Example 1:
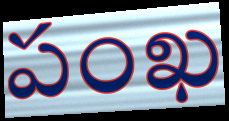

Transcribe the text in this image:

పంఖ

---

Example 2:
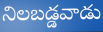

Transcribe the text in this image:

నిలబడ్డవాడు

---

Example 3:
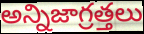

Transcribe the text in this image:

అన్నిజాగ్రత్తలు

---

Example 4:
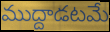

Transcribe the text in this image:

ముద్దాడటమే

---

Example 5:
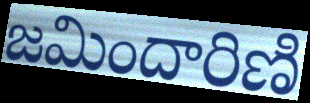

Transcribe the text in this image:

జమిందారిణి